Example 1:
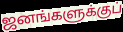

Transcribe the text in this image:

ஜனங்களுக்குப்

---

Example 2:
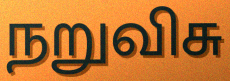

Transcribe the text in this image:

நறுவிசு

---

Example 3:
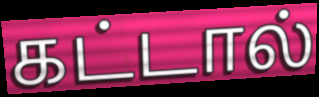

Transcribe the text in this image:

கட்டால்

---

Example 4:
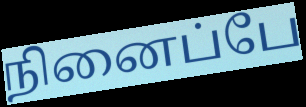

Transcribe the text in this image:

நினைப்பே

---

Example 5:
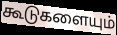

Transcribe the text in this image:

கூடுகளையும்